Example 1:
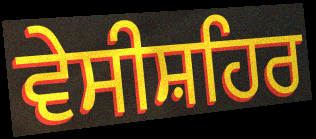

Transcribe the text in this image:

ਵੇਸੀਸ਼ਹਿਰ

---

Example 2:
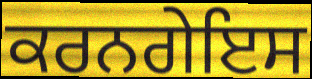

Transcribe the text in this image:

ਕਰਨਗੇਇਸ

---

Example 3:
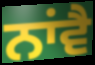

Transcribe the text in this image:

ਨਾਂਵੈ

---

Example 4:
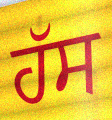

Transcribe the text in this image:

ਹੱਸ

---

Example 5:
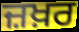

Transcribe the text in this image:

ਜ਼ਖ਼ਰ